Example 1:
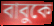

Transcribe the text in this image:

বাবুকে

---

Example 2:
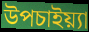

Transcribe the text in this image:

উপচাইয়্যা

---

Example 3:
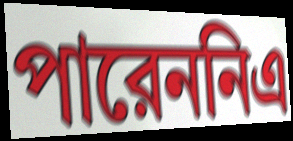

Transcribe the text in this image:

পারেননিএ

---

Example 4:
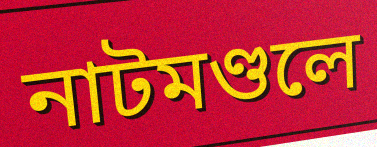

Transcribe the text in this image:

নাটমণ্ডলে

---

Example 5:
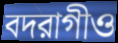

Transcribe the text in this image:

বদরাগীও